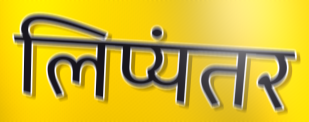
लिप्यंतर